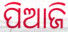
ପିଆଜି